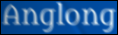
Anglong